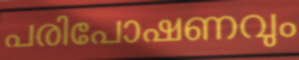
പരിപോഷണവും